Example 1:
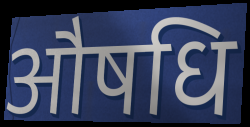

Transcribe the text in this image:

औषधि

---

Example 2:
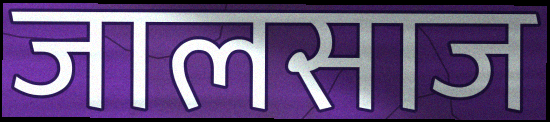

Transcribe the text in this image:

जालसाज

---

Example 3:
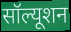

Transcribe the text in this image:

सॉल्यूशन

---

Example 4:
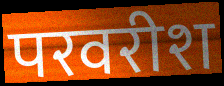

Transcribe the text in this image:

परवरीश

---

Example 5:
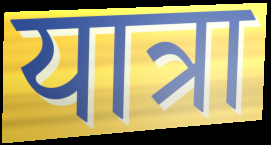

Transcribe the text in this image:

यात्रा